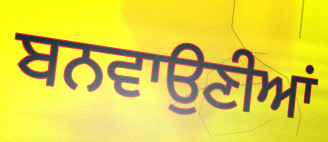
ਬਨਵਾਉਣੀਆਂ